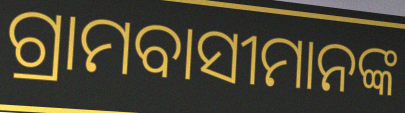
ଗ୍ରାମବାସୀମାନଙ୍କ